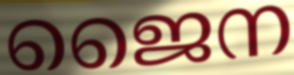
ജൈന